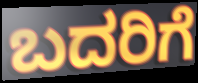
ಬದರಿಗೆ